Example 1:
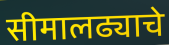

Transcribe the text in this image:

सीमालढ्याचे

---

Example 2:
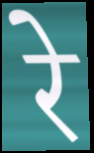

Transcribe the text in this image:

रे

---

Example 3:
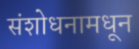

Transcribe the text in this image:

संशोधनामधून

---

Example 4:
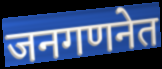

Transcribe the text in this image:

जनगणनेत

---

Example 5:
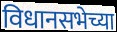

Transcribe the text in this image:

विधानसभेच्या